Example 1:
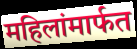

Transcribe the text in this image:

महिलांमार्फत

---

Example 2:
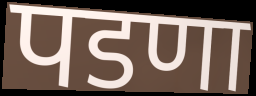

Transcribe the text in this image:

पडणा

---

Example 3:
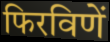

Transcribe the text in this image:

फिरविणें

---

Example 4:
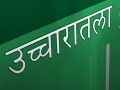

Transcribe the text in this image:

उच्चारातला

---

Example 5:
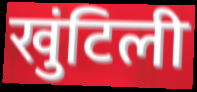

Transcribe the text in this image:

खुंटिली